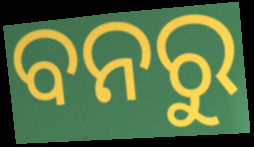
ବନରୁ